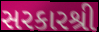
સરકારશ્રી